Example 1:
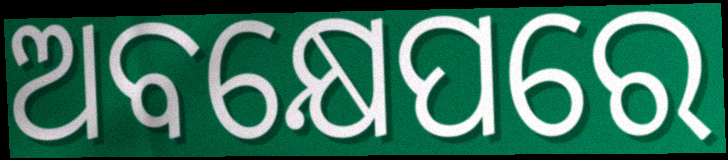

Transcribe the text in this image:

ଅବକ୍ଷେପରେ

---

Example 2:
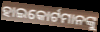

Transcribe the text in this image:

ହାଇକୋର୍ଟମାନଙ୍କୁ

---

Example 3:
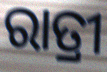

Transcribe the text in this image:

ରାତ୍ରୀ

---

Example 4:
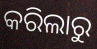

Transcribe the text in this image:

କରିଲାରୁ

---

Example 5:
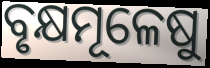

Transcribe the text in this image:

ବୃକ୍ଷମୂଳେଷୁ